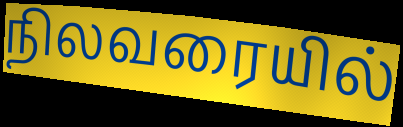
நிலவரையில்